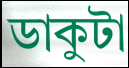
ডাকুটা